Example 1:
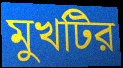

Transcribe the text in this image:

মুখটির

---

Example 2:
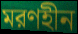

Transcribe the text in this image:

মরণহীন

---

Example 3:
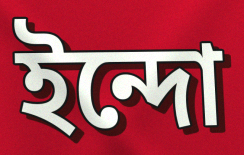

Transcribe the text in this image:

ইন্দো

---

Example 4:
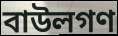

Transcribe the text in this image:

বাউলগণ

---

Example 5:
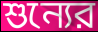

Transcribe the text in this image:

শুন্যের